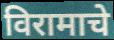
विरामाचे